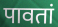
पावतां